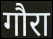
गौरा